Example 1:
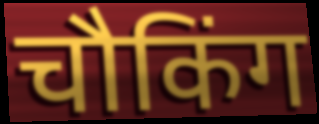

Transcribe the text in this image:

चौकिंग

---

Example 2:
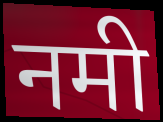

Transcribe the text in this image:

नमी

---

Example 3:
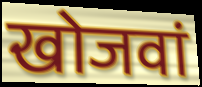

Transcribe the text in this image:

खोजवां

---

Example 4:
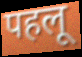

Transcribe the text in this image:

पहलू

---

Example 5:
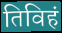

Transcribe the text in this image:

तिविहं